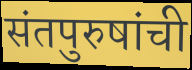
संतपुरुषांची